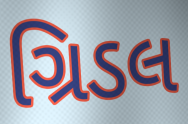
ગ્રિડલ